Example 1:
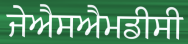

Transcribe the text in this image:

ਜੇਐਸਐਮਡੀਸੀ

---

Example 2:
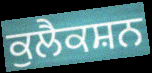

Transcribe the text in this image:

ਕੁਲੈਕਸ਼ਨ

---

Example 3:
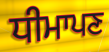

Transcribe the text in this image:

ਧੀਮਾਪਣ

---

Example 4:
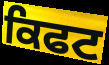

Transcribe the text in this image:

ਕਿਫਟ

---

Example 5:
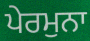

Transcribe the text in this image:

ਪੇਰਮੁਨਾ